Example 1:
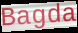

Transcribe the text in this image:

Bagda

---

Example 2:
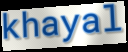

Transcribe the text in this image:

khayal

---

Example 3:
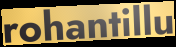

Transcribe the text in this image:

rohantillu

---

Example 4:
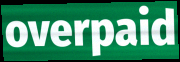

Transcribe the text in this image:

overpaid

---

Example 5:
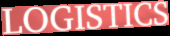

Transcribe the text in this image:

LOGISTICS